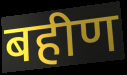
बहीण